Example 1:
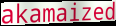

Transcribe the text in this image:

akamaized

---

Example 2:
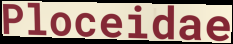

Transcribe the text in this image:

Ploceidae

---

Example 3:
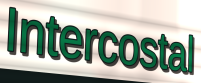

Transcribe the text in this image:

Intercostal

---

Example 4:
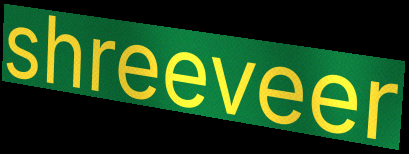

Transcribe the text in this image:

shreeveer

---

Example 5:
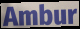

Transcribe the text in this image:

Ambur